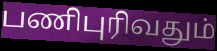
பணிபுரிவதும்